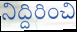
నిద్దిరించి